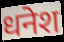
धनेश